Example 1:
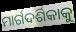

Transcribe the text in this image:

ମାର୍ଗଦର୍ଶିକାକୁ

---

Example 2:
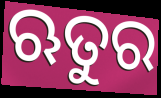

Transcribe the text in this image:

ଋତୁର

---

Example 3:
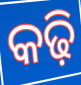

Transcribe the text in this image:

କଢ଼ି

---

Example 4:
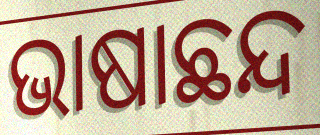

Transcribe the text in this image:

ଭାଷାଛନ୍ଦ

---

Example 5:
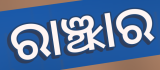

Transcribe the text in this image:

ରାଞ୍ଝାର